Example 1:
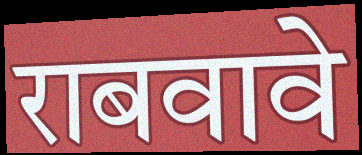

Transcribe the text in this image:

राबवावे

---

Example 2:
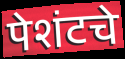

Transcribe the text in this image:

पेशंटचे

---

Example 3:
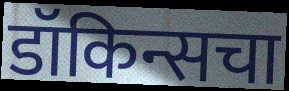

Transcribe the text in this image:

डॉकिन्सचा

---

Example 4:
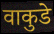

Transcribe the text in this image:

वाकुडे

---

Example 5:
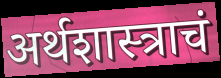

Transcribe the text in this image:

अर्थशास्त्राचं